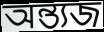
অন্ত্যজ